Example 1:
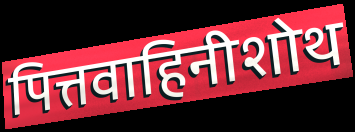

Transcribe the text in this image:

पित्तवाहिनीशोथ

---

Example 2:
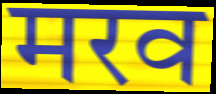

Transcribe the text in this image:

मरव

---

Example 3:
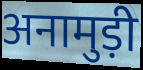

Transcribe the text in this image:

अनामुड़ी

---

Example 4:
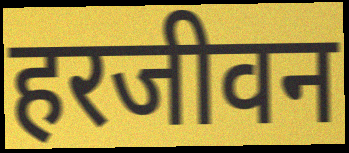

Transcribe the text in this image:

हरजीवन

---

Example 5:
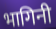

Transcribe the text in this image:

भागिनी